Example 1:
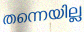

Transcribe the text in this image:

തന്നെയില്ല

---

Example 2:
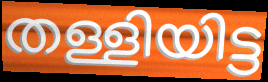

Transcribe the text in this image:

തള്ളിയിട്ട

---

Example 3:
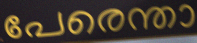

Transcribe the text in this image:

പേരെന്താ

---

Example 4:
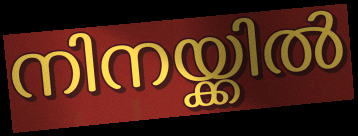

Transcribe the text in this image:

നിനയ്ക്കിൽ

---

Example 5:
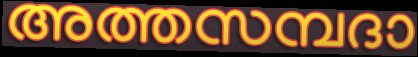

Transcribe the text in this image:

അത്തസമ്പദാ